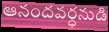
ఆనందవర్ధనుడి